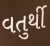
વતુર્થી